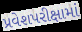
પ્રવેશપરીક્ષામાં